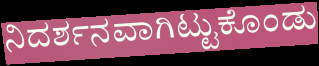
ನಿದರ್ಶನವಾಗಿಟ್ಟುಕೊಂಡು